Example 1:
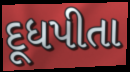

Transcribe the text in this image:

દૂધપીતા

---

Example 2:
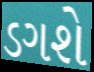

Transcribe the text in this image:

ડગશે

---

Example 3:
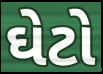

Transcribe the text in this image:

ઘેટો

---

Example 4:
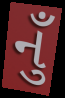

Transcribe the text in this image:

નુઁ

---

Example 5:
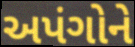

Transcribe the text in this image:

અપંગોને